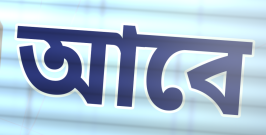
আবে